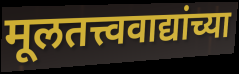
मूलतत्त्ववाद्यांच्या